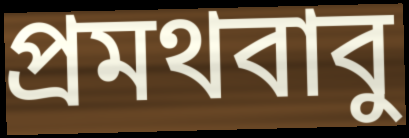
প্রমথবাবু